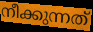
നീക്കുന്നത്